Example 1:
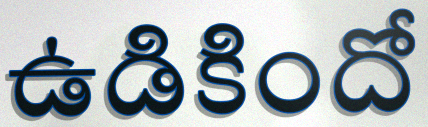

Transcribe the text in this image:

ఉడికిందో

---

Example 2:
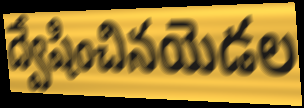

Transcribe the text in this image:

ద్వేషించినయెడల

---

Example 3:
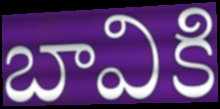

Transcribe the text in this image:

బావికి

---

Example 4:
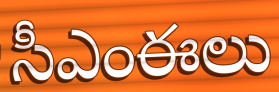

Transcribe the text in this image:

సీఎంఈలు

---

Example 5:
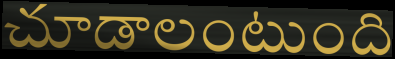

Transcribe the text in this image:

చూడాలంటుంది